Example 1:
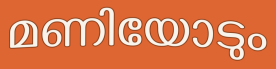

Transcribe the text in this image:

മണിയോടും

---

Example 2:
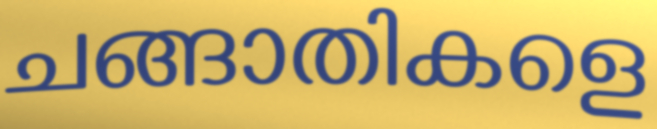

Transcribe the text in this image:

ചങ്ങാതികളെ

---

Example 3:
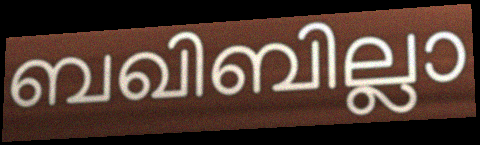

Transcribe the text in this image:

ബഖിബില്ലാ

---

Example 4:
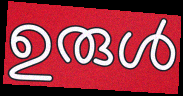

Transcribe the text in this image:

ഉരുൾ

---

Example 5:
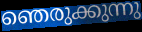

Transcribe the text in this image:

ഞെരുക്കുന്നു